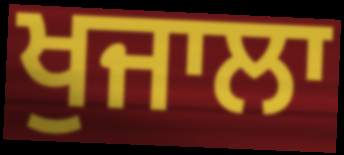
ਖੁਜਾਲਾ